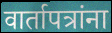
वार्तापत्रांना